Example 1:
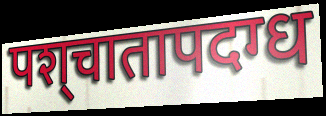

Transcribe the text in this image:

पश्चातापदग्ध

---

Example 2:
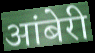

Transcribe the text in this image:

आंबेरी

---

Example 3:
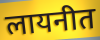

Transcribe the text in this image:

लायनीत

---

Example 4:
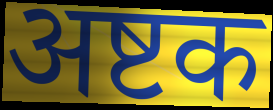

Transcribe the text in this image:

अष्टक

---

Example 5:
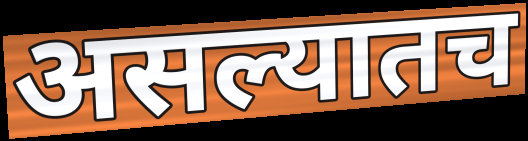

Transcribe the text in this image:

असल्यातच